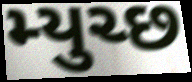
મ્યુચ્છ